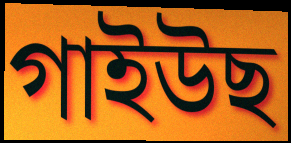
গাইউছ